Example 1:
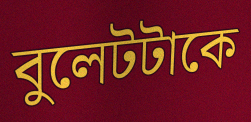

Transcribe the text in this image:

বুলেটটাকে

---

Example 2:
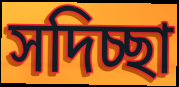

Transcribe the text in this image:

সদিচ্ছা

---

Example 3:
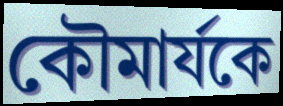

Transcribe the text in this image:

কৌমার্যকে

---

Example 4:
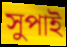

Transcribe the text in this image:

সুপাই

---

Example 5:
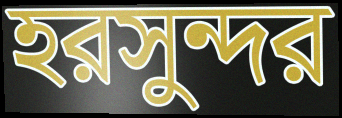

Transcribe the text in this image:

হরসুন্দর